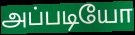
அப்படியோ